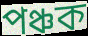
পঞ্চক